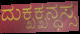
ದುಕ್ಖಕ್ಖನ್ಧಸ್ಸ